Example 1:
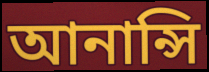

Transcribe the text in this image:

আনান্সি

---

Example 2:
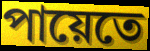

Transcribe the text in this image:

পায়েতে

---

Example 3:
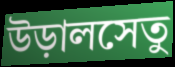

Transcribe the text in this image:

উড়ালসেতু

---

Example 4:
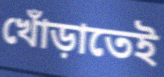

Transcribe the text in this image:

খোঁড়াতেই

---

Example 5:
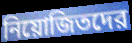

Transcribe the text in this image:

নিয়োজিতদের